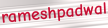
rameshpadwal